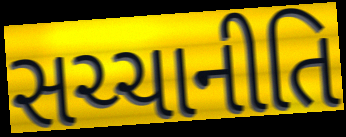
સચ્ચાનીતિ